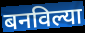
बनविल्या